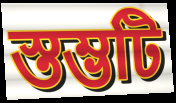
স্তম্ভটি